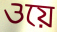
ওয়ে